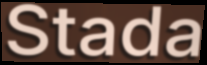
Stada